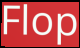
Flop